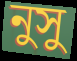
নুসু